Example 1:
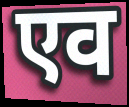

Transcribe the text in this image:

एव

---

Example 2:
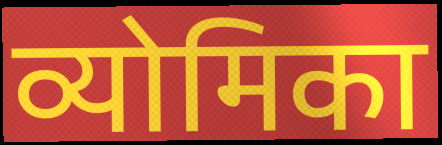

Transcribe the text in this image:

व्योमिका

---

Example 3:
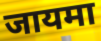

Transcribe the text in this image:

जायमा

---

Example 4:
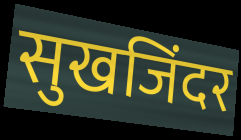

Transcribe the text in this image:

सुखजिंदर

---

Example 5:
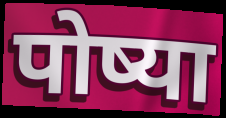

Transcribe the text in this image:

पोष्या